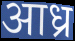
आध्र